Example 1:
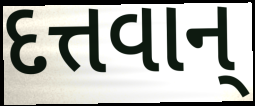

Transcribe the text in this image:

દત્તવાન્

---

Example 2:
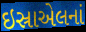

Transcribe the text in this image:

ઇસ્રાએલનાં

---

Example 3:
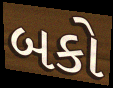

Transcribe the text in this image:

બકો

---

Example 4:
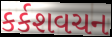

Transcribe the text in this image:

કર્કશવચન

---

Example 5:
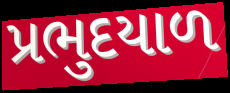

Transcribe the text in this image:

પ્રભુદયાળ